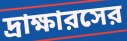
দ্রাক্ষারসের